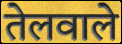
तेलवाले